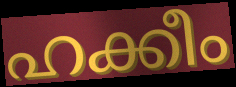
ഹക്കീം